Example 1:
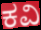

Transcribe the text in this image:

ಕವಿ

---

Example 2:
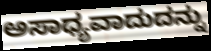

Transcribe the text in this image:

ಅಸಾಧ್ಯವಾದುದನ್ನು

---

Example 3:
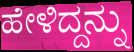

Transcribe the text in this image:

ಹೇಳಿದ್ದನ್ನು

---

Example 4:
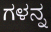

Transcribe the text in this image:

ಗಳನ್ನ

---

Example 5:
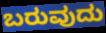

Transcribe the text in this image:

ಬರುವುದು